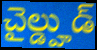
చైల్డ్హుడ్